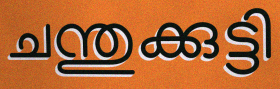
ചന്തുക്കുട്ടി